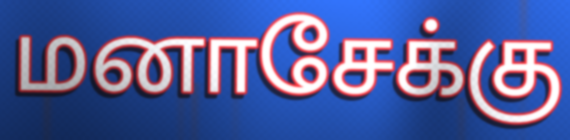
மனாசேக்கு